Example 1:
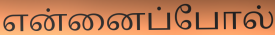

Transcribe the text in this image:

என்னைப்போல்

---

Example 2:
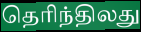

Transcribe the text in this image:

தெரிந்திலது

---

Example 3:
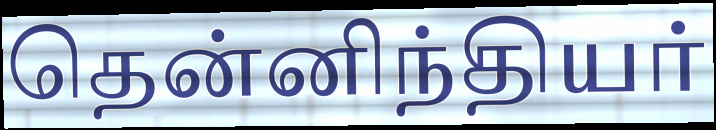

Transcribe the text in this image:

தென்னிந்தியர்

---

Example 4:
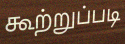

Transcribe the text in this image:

கூற்றுப்படி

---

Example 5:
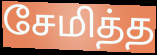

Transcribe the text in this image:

சேமித்த